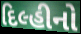
દિલ્હીનો